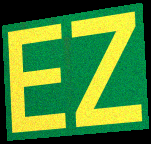
EZ